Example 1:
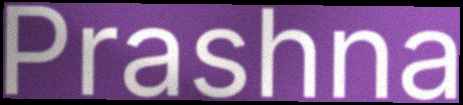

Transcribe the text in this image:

Prashna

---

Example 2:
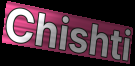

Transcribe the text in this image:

Chishti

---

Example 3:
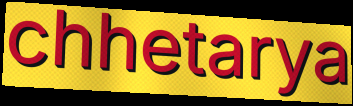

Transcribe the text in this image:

chhetarya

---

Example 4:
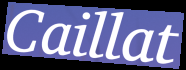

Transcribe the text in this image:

Caillat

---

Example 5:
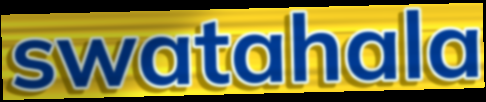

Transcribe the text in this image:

swatahala